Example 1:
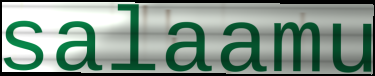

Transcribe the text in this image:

salaamu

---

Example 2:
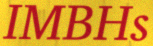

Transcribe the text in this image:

IMBHs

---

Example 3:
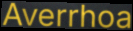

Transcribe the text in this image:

Averrhoa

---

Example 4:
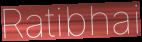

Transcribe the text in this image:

Ratibhai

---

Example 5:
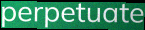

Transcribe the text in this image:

perpetuate